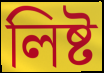
লিষ্ট